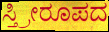
ಸ್ತ್ರೀರೂಪದ